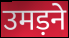
उमड़ने